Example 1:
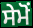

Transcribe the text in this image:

ਸੇਮੋਂ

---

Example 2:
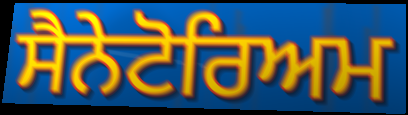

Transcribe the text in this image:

ਸੈਨੇਟੋਰਿਅਮ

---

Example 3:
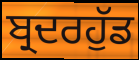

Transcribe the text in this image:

ਬ੍ਰਦਰਹੁੱਡ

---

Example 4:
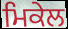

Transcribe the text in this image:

ਮਿਕੇਲ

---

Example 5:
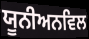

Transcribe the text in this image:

ਯੂਨੀਅਨਵਿਲ